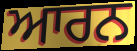
ਆਰਨ